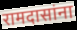
रामदासांना